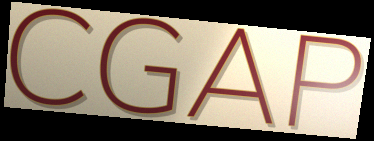
CGAP